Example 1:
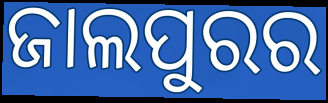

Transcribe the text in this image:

ଜାଲପୁରର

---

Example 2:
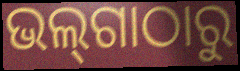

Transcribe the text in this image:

ଭଲ୍‌ଗାଠାରୁ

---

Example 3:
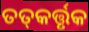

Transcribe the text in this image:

ତତ୍‌କର୍ତ୍ତୃକ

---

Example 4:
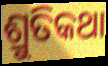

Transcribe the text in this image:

ଶ୍ରୁତିକଥା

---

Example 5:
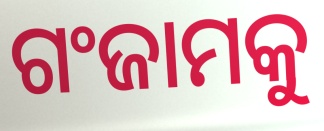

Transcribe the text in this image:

ଗଂଜାମକୁ